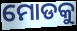
ମୋଡକୁ